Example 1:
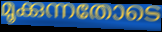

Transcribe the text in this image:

മൂക്കുന്നതോടെ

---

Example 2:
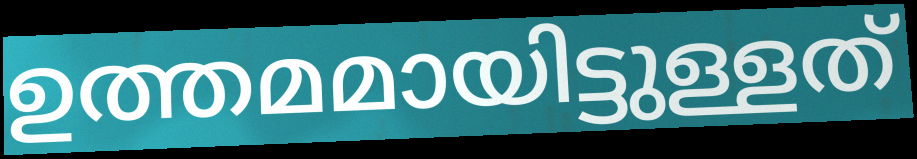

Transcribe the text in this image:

ഉത്തമമായിട്ടുള്ളത്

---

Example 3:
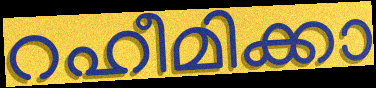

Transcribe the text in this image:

റഹീമിക്കാ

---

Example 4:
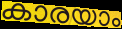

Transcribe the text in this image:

കാരയാം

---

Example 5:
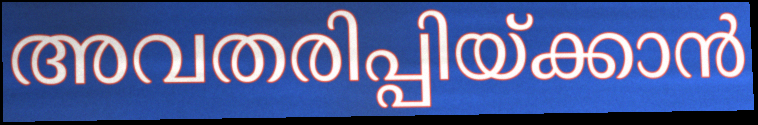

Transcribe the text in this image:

അവതരിപ്പിയ്ക്കാൻ